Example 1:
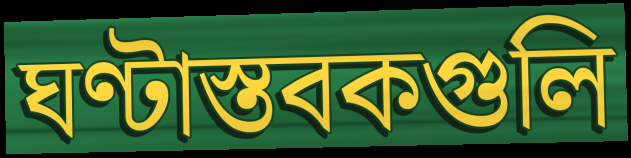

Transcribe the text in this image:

ঘণ্টাস্তবকগুলি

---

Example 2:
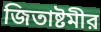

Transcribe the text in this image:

জিতাষ্টমীর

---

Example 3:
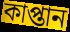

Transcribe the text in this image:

কাপ্তান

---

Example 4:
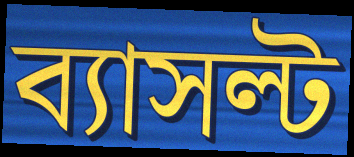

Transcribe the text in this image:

ব্যাসল্ট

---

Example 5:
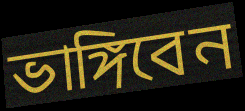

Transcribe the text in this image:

ভাঙ্গিবেন